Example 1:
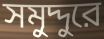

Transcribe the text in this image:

সমুদ্দুরে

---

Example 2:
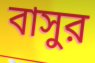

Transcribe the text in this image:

বাসুর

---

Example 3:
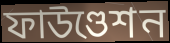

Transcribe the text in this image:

ফাউণ্ডেশন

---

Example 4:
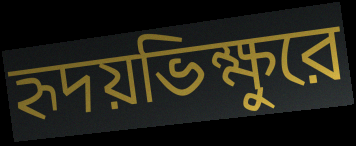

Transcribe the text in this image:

হৃদয়ভিক্ষুরে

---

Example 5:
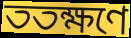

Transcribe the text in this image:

ততক্ষণে